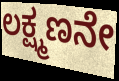
ಲಕ್ಷ್ಮಣನೇ